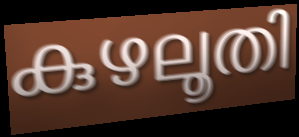
കുഴലൂതി